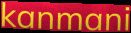
kanmani